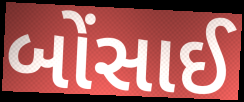
બોંસાઈ